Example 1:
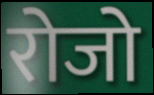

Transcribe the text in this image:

रोजो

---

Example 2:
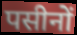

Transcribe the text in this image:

पसीनों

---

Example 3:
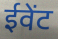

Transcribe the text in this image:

ईवेंट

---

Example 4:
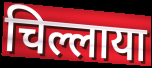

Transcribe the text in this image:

चिल्लाया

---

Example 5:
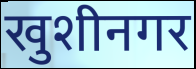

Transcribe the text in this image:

खुशीनगर